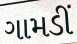
ગામડીં